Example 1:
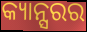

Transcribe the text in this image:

କ୍ୟାନ୍ସରର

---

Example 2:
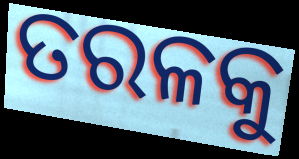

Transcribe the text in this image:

ତରଳକୁ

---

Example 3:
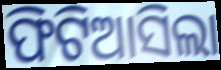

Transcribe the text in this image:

ଫିଟିଆସିଲା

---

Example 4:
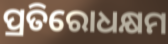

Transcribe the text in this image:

ପ୍ରତିରୋଧକ୍ଷମ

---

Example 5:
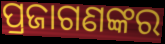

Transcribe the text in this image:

ପ୍ରଜାଗଣଙ୍କର